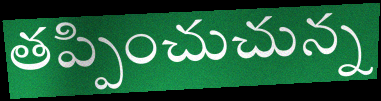
తప్పించుచున్న